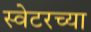
स्वेटरच्या